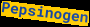
Pepsinogen